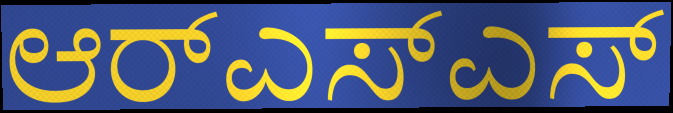
ಆರ್‌ಎಸ್ಎಸ್